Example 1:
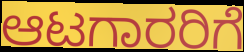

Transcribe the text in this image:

ಆಟಗಾರರಿಗೆ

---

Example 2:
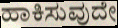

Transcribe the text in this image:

ಹಾಕಿಸುವುದೇ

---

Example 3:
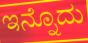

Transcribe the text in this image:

ಇನ್ನೊದು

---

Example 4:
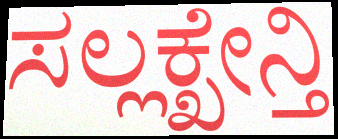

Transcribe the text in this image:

ಸಲ್ಲಕ್ಖೇನ್ತಿ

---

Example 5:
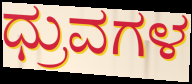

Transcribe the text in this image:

ಧ್ರುವಗಳ